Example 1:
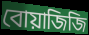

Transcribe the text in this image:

বোয়াজিজি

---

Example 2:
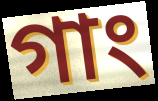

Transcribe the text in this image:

গাং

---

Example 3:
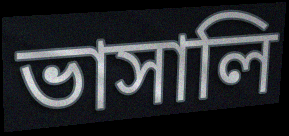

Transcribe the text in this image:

ভাসালি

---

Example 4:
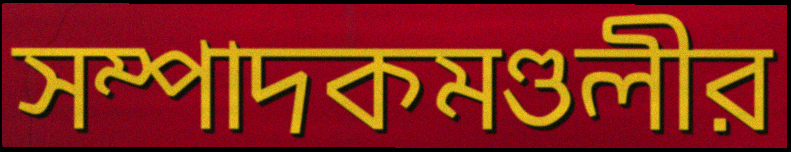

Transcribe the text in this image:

সম্পাদকমণ্ডলীর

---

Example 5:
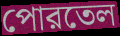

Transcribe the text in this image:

পোরতেল